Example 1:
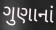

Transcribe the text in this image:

ગુણાનાં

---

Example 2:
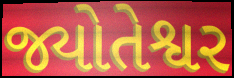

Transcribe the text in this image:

જ્યોતેશ્વર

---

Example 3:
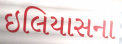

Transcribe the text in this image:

ઇલિયાસના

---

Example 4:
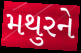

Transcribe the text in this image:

મથુરને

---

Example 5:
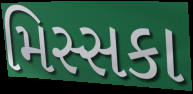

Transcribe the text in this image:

મિસ્સકા